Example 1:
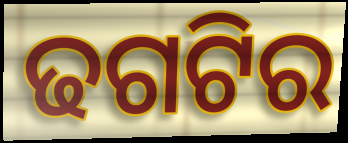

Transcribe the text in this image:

ଢଗଟିର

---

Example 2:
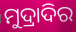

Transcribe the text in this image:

ମୁଦ୍ରାଦିର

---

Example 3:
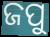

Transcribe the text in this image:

ଜପୁ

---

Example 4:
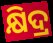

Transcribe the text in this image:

କ୍ଷିଦ୍ର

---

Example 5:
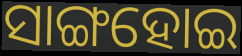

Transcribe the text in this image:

ସାଙ୍ଗହୋଇ